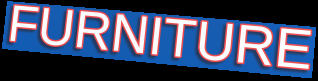
FURNITURE